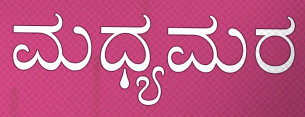
ಮಧ್ಯಮರ